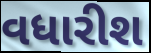
વધારીશ